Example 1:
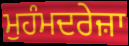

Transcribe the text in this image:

ਮੁਹੰਮਦਰੇਜ਼ਾ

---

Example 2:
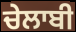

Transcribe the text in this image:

ਚੇਲਾਬੀ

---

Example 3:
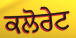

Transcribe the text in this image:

ਕਲੋਰੇਟ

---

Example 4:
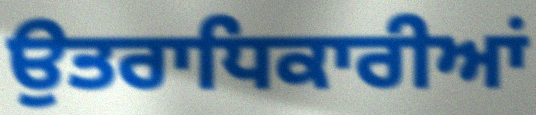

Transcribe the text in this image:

ਉਤਰਾਧਿਕਾਰੀਆਂ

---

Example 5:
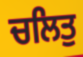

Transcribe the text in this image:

ਚਲਿਤੁ